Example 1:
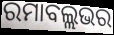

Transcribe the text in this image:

ରମାବଲ୍ଲଭର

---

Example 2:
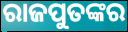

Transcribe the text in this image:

ରାଜପୁତଙ୍କର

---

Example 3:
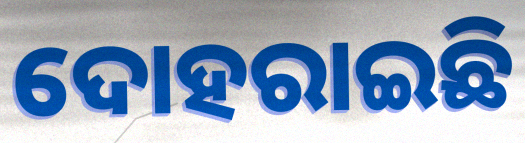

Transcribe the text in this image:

ଦୋହରାଇଛି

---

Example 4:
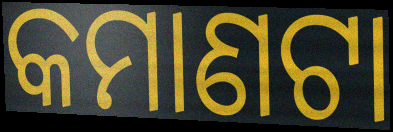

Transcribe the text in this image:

କମାଣଟା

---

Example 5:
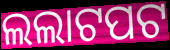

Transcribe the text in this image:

ଲଲାଟପଟ